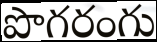
పొగరంగు